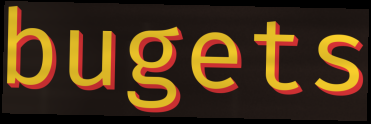
bugets